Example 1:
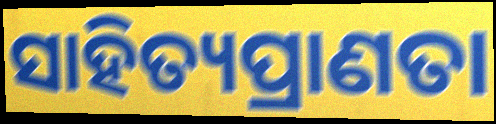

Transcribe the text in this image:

ସାହିତ୍ୟପ୍ରାଣତା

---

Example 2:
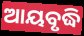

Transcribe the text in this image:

ଆୟବୃଦ୍ଧି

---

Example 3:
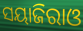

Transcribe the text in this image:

ସୟାଜିରାଓ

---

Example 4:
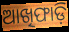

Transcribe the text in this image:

ଆଖିଫାଡ଼ି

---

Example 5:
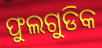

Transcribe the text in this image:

ଫୁଲଗୁଡିକ